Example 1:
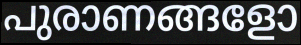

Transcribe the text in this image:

പുരാണങ്ങളോ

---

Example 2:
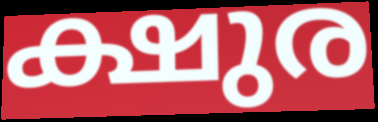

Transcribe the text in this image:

ക്ഷുര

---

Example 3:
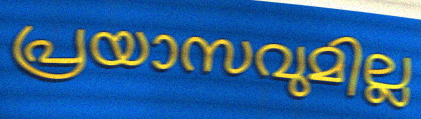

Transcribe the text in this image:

പ്രയാസവുമില്ല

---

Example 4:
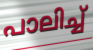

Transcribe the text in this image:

പാലിച്ച്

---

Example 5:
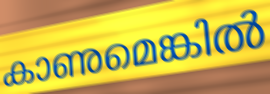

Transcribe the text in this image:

കാണുമെങ്കിൽ